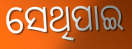
ସେଥିପାଇ